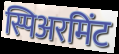
स्पिअरमिंट